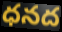
ధనద